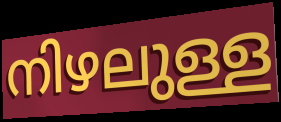
നിഴലുള്ള